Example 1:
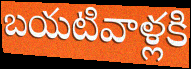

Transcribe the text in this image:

బయటివాళ్లకి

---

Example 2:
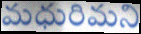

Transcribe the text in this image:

మధురిమని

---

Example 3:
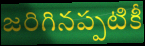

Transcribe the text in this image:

జరిగినప్పటికీ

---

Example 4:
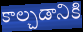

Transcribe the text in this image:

కాల్చడానికి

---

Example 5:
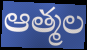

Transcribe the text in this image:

ఆత్మల